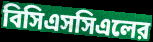
বিসিএসসিএলের